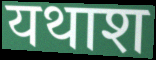
यथाश